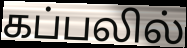
கப்பலில்